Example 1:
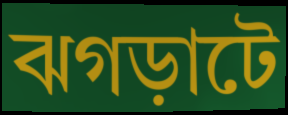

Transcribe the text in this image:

ঝগড়াটে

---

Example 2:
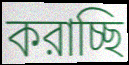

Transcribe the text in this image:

করাচ্ছি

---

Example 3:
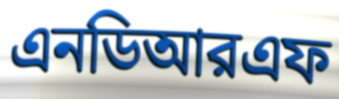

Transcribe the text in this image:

এনডিআরএফ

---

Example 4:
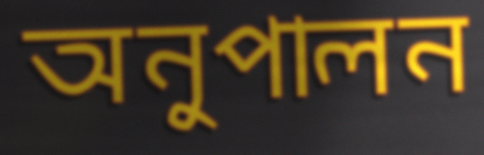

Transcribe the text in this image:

অনুপালন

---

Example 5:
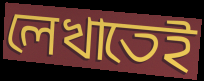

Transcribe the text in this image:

লেখাতেই